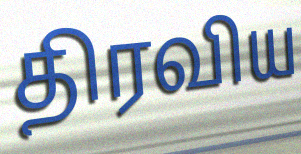
திரவிய